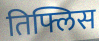
तिफ्लिस